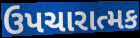
ઉપચારાત્મક